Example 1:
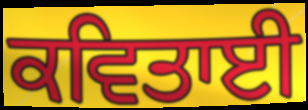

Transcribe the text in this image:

ਕਵਿਤਾਈ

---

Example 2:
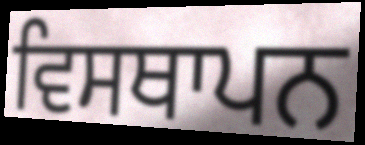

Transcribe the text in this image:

ਵਿਸਥਾਪਨ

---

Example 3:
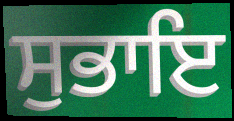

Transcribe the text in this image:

ਸੁਭਾਇ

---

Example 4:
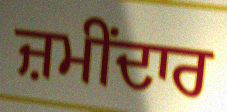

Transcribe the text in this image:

ਜ਼ਮੀਂਦਾਰ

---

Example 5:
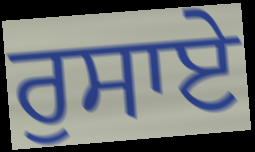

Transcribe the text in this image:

ਰੁਸਾਏ